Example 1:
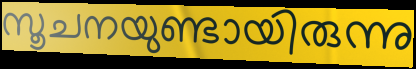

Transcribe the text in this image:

സൂചനയുണ്ടായിരുന്നു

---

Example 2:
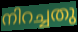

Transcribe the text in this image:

നിറച്ചതു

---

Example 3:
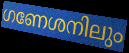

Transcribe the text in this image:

ഗണേശനിലും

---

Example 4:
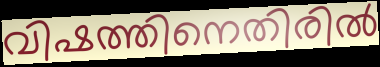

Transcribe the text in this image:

വിഷത്തിനെതിരിൽ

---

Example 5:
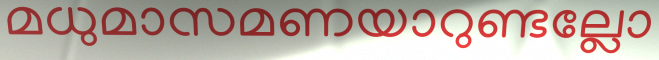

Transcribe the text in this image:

മധുമാസമണയാറുണ്ടല്ലോ